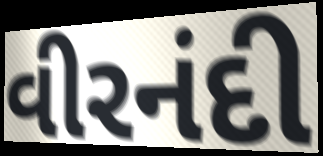
વીરનંદી